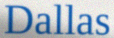
Dallas